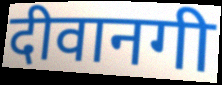
दीवानगी